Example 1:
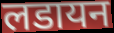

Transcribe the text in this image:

लडायन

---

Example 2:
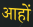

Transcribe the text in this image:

आहों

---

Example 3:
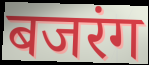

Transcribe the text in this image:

बजरंग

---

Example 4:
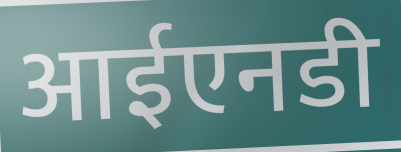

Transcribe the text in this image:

आईएनडी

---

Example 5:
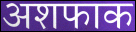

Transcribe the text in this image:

अशफाक